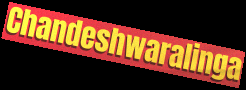
Chandeshwaralinga